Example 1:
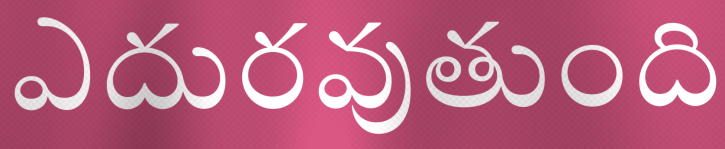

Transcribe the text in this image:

ఎదురవుతుంది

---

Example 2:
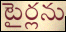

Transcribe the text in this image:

టైర్లను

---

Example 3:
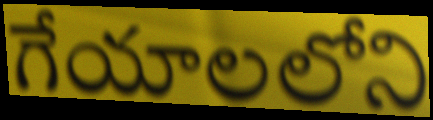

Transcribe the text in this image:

గేయాలలోని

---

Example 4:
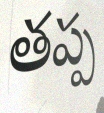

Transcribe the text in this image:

తప్ప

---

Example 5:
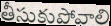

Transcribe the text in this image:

తీసుకుపోవాలి